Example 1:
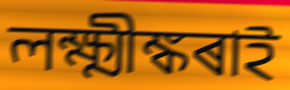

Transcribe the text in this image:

লক্ষ্মীঙ্কৰাই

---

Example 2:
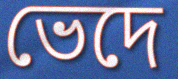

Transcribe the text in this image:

ভেদে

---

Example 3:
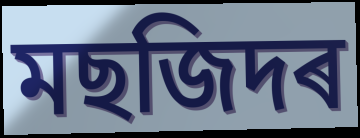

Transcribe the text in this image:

মছজিদৰ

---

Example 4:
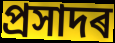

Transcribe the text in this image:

প্ৰসাদৰ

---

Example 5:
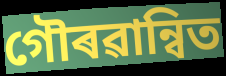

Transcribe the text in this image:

গৌৰৱান্বিত